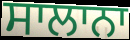
ਸਾਲਾਨਾ